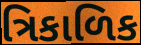
ત્રિકાળિક